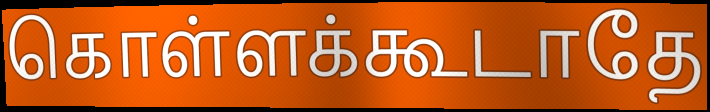
கொள்ளக்கூடாதே